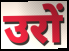
उरों